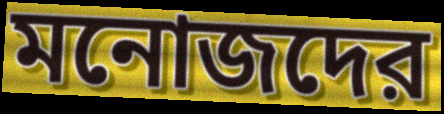
মনোজদের